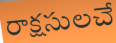
రాక్షసులచే